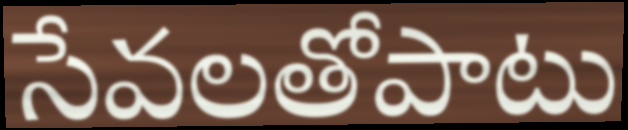
సేవలతోపాటు